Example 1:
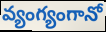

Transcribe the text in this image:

వ్యంగ్యంగానో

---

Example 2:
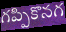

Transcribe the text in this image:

గప్పికొనగ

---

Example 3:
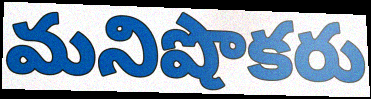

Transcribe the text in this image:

మనిషొకరు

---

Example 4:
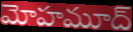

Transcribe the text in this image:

మోహమూద్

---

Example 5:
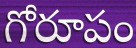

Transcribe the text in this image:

గోరూపం